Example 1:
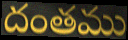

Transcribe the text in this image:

దంతము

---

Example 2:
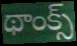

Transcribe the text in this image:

థాంక్స్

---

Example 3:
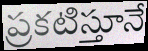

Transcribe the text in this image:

ప్రకటిస్తూనే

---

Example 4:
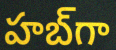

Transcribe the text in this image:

హబ్‌గా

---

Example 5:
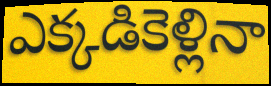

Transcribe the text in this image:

ఎక్కడికెళ్లినా